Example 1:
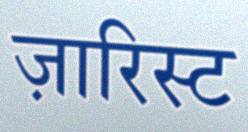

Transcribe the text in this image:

ज़ारिस्ट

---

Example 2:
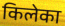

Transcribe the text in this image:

किलेका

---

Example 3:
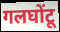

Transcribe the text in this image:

गलघोंटू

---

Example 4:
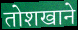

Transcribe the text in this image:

तोशखाने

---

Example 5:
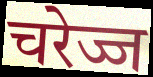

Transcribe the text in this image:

चरेज्ज